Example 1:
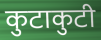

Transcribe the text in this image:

कुटाकुटी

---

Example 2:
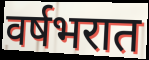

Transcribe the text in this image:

वर्षभरात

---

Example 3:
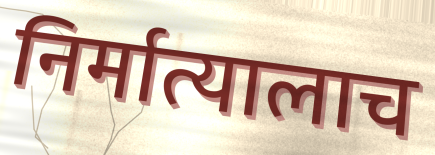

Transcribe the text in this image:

निर्मात्यालाच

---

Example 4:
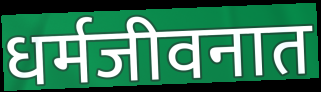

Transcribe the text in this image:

धर्मजीवनात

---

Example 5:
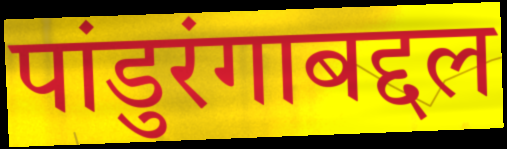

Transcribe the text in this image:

पांडुरंगाबद्दल